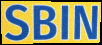
SBIN